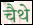
चैथे